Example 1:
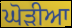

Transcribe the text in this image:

ਘੋੜੀਆ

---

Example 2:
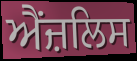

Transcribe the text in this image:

ਐਂਜ਼ਲਿਸ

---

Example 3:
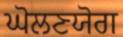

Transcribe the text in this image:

ਘੋਲਣਯੋਗ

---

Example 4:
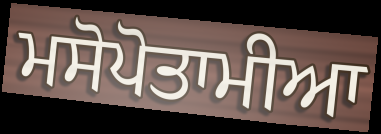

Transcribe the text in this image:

ਮਸੋਪੋਤਾਮੀਆ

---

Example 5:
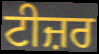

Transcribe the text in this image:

ਟੀਜ਼ਰ